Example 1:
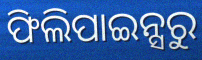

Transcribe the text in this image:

ଫିଲିପାଇନ୍ସରୁ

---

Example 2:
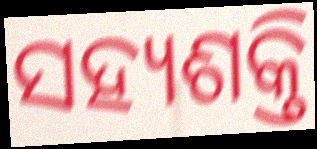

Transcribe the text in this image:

ସହ୍ୟଶକ୍ତି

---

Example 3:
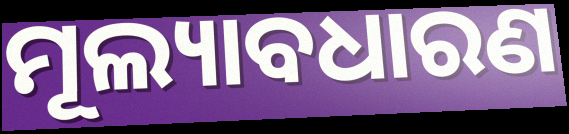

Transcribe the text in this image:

ମୂଲ୍ୟାବଧାରଣ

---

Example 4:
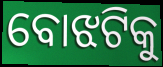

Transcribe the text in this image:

ବୋଝଟିକୁ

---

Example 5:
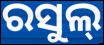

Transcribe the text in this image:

ରସୁଲ୍